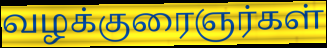
வழக்குரைஞர்கள்